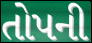
તોપની